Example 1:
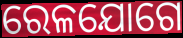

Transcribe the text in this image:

ରେଳଯୋଗେ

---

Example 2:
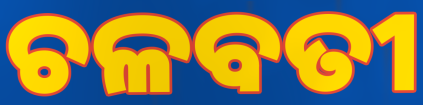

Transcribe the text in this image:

ଚଳବତୀ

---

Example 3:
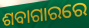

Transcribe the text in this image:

ଶବାଗାରରେ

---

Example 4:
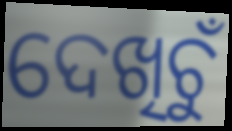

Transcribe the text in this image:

ଦେଖିଚୁଁ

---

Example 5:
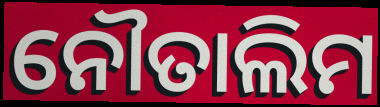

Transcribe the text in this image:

ନୌତାଲିମ